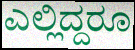
ಎಲ್ಲಿದ್ದರೂ